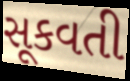
સૂકવતી